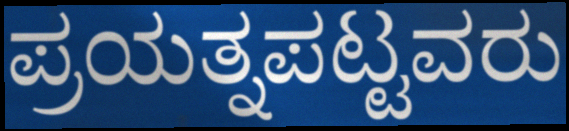
ಪ್ರಯತ್ನಪಟ್ಟವರು